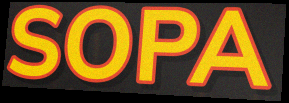
SOPA